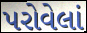
પરોવેલાં